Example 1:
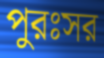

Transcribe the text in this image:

পুরঃসর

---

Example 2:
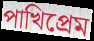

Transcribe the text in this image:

পাখিপ্রেম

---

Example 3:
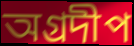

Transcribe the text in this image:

অগ্রদীপ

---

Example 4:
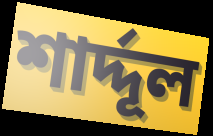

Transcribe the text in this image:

শার্দ্দূল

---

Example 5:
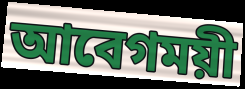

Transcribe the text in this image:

আবেগময়ী